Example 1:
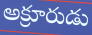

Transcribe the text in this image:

అక్రూరుడు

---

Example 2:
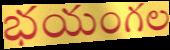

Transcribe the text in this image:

భయంగల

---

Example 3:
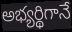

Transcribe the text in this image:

అభ్యర్థిగానే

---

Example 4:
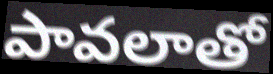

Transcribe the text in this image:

పావలాతో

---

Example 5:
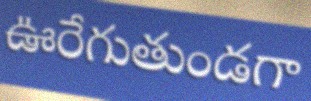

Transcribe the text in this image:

ఊరేగుతుండగా